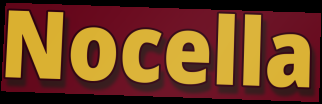
Nocella